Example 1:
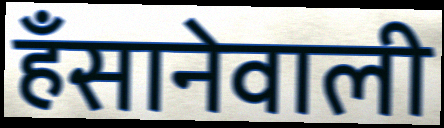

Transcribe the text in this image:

हँसानेवाली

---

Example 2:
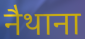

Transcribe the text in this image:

नैथाना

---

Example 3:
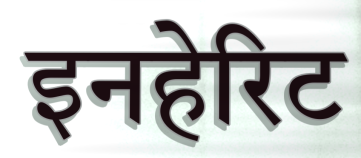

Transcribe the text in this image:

इनहेरिट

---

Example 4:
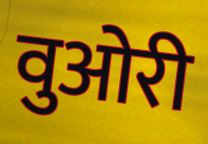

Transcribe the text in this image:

वुओरी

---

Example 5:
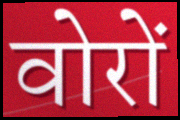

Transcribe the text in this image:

वोरों